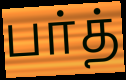
பர்த்